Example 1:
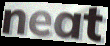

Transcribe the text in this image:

neat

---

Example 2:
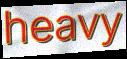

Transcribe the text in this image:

heavy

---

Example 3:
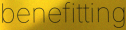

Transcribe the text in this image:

benefitting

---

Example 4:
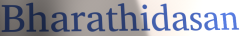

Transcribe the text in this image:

Bharathidasan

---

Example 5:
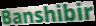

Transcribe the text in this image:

Banshibir